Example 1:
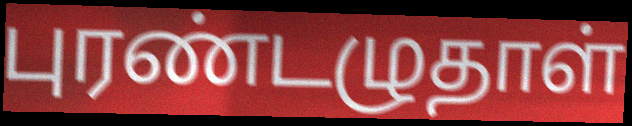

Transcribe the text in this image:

புரண்டழுதாள்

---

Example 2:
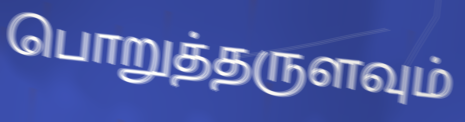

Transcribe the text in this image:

பொறுத்தருளவும்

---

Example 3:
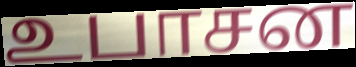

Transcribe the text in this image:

உபாசன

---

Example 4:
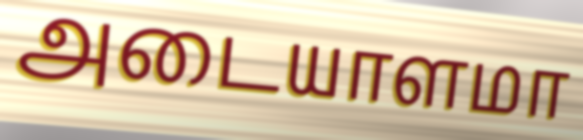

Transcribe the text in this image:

அடையாளமா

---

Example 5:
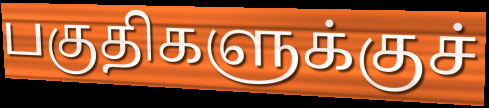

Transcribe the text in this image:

பகுதிகளுக்குச்